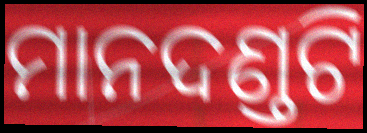
ମାନଦଣ୍ଡଟି